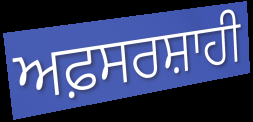
ਅਫ਼ਸਰਸ਼ਾਹੀ